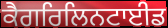
ਕੈਗਰਿਲਿਨਟਾਈਡ